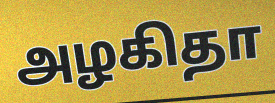
அழகிதா